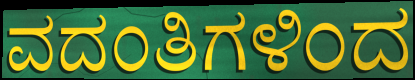
ವದಂತಿಗಳಿಂದ